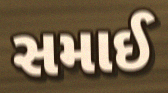
સમાઈ